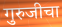
गुरुजीचा